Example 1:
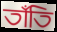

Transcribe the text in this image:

তাঁতি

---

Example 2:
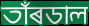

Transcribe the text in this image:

তাঁৰডাল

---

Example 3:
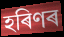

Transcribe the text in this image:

হৰিণৰ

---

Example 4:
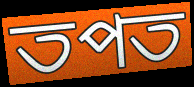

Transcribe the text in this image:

তপত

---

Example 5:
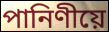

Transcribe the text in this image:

পানিণীয়ে